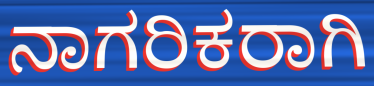
ನಾಗರಿಕರಾಗಿ